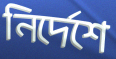
নিৰ্দেশে